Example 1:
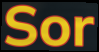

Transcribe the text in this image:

Sor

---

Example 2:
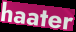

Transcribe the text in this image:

haater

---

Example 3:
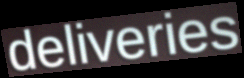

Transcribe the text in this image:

deliveries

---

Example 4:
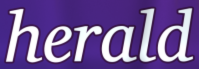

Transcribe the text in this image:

herald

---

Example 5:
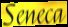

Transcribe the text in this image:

Seneca